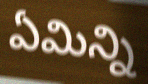
ఏమిన్ని